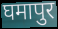
घमापुर